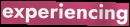
experiencing